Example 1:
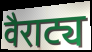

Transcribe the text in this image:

वैराट्य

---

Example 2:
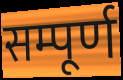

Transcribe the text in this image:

सम्‍पूर्ण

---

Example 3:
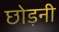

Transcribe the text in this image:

छोड़नी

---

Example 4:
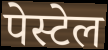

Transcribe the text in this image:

पेस्टेल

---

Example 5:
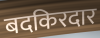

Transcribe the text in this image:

बदकिरदार